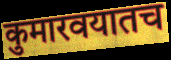
कुमारवयातच